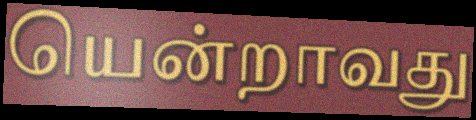
யென்றாவது